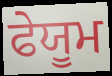
ਫੇਯੂਮ